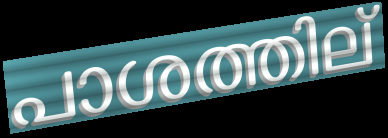
പാശത്തില്